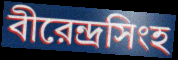
বীরেন্দ্রসিংহ